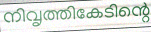
നിവൃത്തികേടിന്റെ